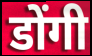
डोंगी